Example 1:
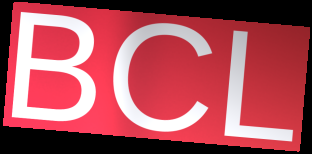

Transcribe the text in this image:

BCL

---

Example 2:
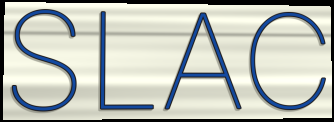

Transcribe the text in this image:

SLAC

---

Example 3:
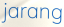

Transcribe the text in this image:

jarang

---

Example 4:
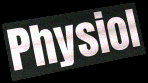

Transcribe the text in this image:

Physiol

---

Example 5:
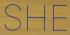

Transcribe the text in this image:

SHE